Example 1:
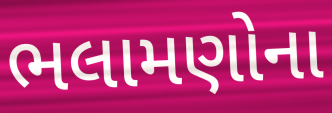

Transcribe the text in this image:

ભલામણોના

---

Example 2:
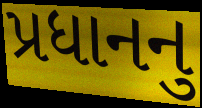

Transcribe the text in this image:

પ્રધાનનુ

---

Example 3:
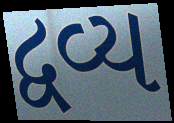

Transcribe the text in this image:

દ્વવ્ય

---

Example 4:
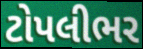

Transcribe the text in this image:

ટોપલીભર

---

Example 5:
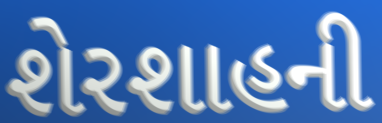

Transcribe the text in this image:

શેરશાહની